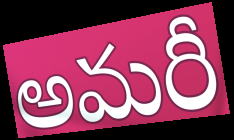
అమరీ